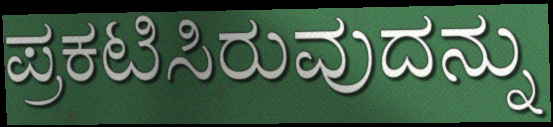
ಪ್ರಕಟಿಸಿರುವುದನ್ನು